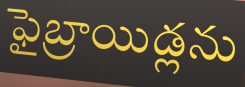
ఫైబ్రాయిడ్లను